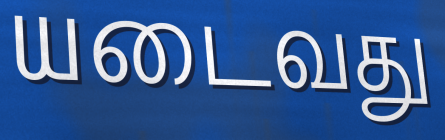
யடைவது